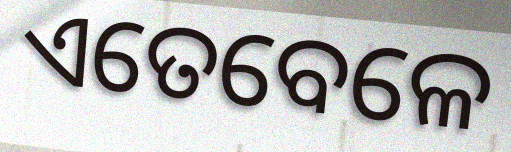
ଏତେବେଳେ